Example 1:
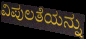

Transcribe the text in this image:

ವಿಪುಲತೆಯನ್ನು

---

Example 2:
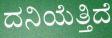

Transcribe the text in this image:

ದನಿಯೆತ್ತಿದೆ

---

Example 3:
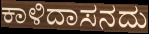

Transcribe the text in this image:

ಕಾಳಿದಾಸನದು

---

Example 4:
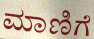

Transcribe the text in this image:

ಮಾಣಿಗೆ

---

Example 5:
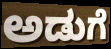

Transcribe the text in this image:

ಅಡುಗೆ